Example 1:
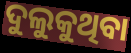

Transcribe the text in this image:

ଦୁଲୁକୁଥିବା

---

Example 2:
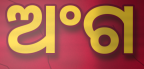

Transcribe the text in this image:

ଅଂଗ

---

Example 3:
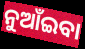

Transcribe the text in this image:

ନୁଆଁଇବା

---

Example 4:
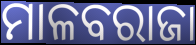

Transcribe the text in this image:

ମାଳବରାଜା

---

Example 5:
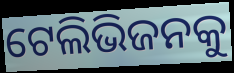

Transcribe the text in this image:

ଟେଲିଭିଜନକୁ